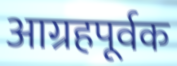
आग्रहपूर्वक